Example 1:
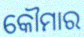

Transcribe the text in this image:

କୌମାର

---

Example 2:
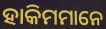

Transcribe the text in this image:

ହାକିମମାନେ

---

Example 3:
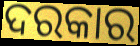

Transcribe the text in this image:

ଦରକାର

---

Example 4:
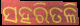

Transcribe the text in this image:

ସହରିତଳି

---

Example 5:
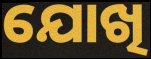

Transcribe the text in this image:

ଯୋଖି